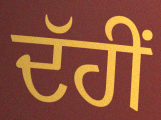
ਦੱਹੀਂ